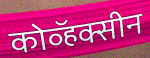
कोव्हॅक्सीन